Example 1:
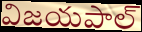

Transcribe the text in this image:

విజయపాల్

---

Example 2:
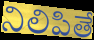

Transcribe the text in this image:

నిలిపితే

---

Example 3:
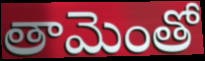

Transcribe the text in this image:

తామెంతో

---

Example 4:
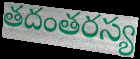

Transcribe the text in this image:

తదంతరస్య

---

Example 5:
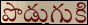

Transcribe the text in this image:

పొడుగుకి